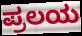
ಪ್ರಲಯ